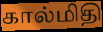
கால்மிதி